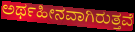
ಅರ್ಥಹೀನವಾಗಿರುತ್ತವೆ